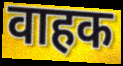
वाहक